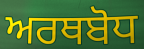
ਅਰਥਬੋਧ